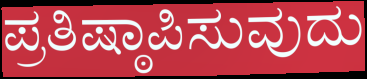
ಪ್ರತಿಷ್ಠಾಪಿಸುವುದು